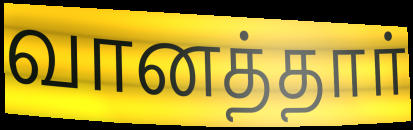
வானத்தார்